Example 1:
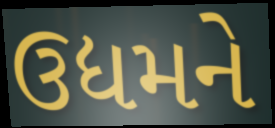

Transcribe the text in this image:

ઉદ્યમને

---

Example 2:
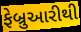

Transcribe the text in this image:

ફેબ્રુઆરીથી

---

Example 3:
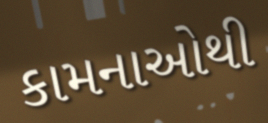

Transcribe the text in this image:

કામનાઓથી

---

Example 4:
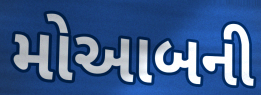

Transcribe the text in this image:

મોઆબની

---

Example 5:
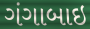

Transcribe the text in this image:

ગંગાબાઇ